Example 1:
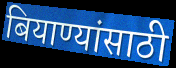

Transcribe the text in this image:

बियाण्यांसाठी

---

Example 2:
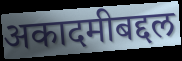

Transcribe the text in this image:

अकादमीबद्दल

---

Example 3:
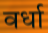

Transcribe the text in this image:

वर्धा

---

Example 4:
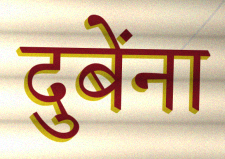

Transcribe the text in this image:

दुबेंना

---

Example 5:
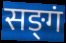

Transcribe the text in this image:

सङ्गं